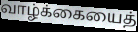
வாழ்க்கையைத்